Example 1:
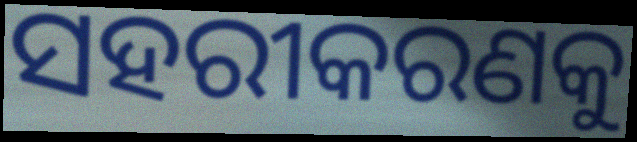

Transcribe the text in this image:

ସହରୀକରଣକୁ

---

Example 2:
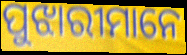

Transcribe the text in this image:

ପୁଝାରୀମାନେ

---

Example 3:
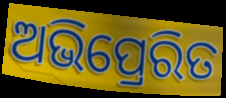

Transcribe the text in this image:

ଅଭିପ୍ରେରିତ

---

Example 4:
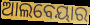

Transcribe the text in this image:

ଆଲବେୟାର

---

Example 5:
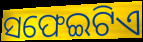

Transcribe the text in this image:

ସଫେଇଟିଏ